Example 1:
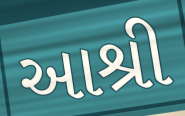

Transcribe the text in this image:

આશ્રી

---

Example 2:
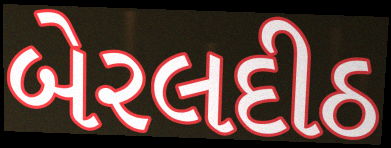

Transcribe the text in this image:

બેરલદીઠ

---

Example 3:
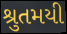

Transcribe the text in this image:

શ્રુતમયી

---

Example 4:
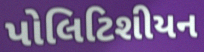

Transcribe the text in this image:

પોલિટિશીયન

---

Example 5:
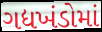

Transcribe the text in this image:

ગદ્યખંડોમાં